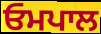
ਓਮਪਾਲ